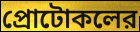
প্রোটোকলের